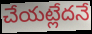
చేయట్లేదనే